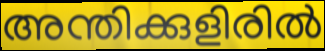
അന്തിക്കുളിരിൽ